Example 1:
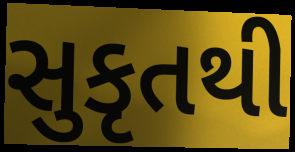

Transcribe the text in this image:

સુકૃતથી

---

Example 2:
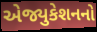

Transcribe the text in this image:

એજ્યુકેશનનો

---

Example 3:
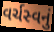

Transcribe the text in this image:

વર્ચસ્વનું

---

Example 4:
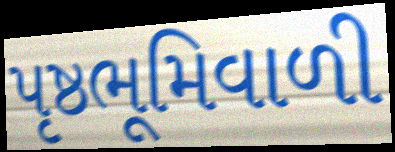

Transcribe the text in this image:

પૃષ્ઠભૂમિવાળી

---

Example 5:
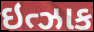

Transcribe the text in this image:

ઇત્ઝાક